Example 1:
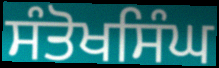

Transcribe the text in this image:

ਸੰਤੋਖਸਿੰਘ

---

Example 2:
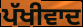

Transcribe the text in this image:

ਪੱਖੀਵਾਦ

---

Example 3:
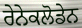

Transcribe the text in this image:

ਰੇਨੇਕਲੋਡੇਨ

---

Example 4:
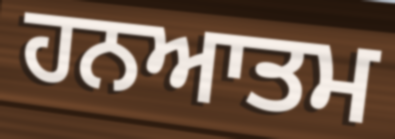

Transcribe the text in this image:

ਹਨਆਤਮ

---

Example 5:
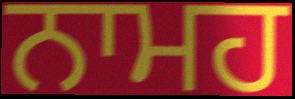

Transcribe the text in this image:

ਨਾਮਹ